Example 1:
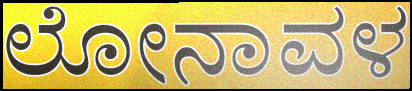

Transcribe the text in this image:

ಲೋನಾವಳ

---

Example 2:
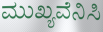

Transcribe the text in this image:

ಮುಖ್ಯವೆನಿಸಿ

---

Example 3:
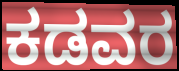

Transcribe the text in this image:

ಕಡವರ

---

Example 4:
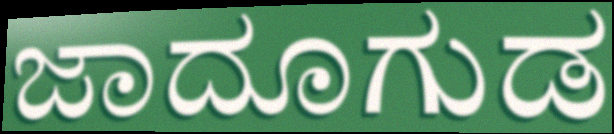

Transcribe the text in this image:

ಜಾದೂಗುಡ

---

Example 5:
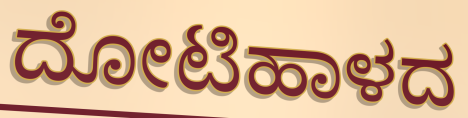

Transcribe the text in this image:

ದೋಟಿಹಾಳದ